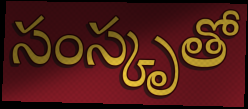
సంస్కృతో